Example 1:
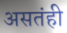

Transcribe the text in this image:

असतंही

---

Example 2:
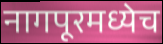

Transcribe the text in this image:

नागपूरमध्येच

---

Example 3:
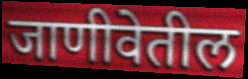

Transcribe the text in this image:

जाणीवेतील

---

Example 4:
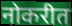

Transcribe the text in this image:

नोकरीत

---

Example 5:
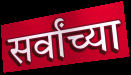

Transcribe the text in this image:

सर्वांच्या